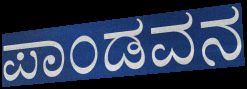
ಪಾಂಡವನ